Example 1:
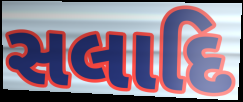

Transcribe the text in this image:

સલાદિ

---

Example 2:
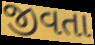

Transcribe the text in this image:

જીવતા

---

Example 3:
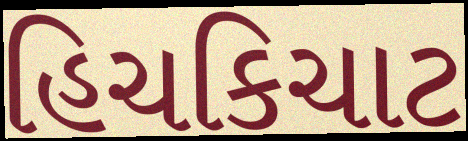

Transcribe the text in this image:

હિચકિચાટ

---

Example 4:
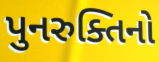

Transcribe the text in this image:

પુનરુક્તિનો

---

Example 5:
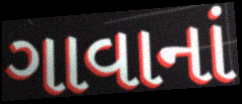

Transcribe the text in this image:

ગાવાનાં